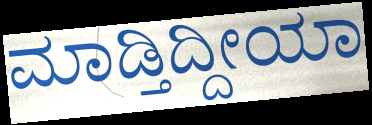
ಮಾಡ್ತಿದ್ದೀಯಾ